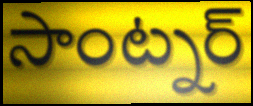
సాంట్నర్